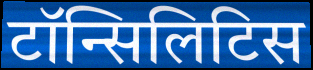
टॉन्सिलिटिस